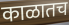
काळातच